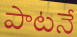
పాటనే